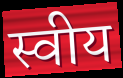
स्वीय